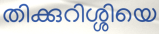
തിക്കുറിശ്ശിയെ